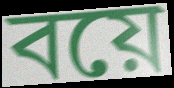
বয়ে